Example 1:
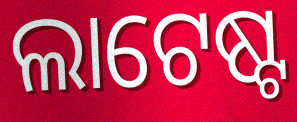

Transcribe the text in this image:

ଲାଟେଷ୍ଟ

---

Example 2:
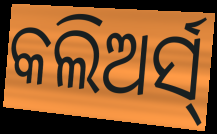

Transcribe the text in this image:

କଲିଅର୍ସ୍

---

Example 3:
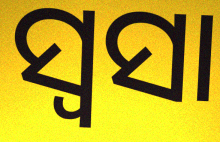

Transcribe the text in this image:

ସ୍ୱସା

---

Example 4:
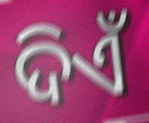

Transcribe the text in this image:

ଦିଏଁ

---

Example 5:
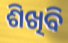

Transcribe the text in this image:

ଶିଖିବି